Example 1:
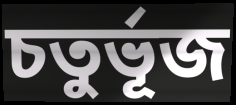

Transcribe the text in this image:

চতুৰ্ভূজ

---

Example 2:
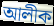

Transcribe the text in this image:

আলীক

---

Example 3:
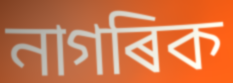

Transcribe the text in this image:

নাগৰিক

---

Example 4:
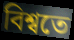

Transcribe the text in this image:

বিশ্বতে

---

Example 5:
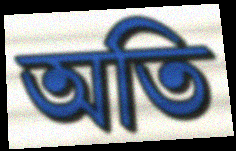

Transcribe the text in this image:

অতি